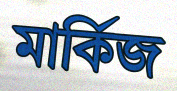
মার্কিজ